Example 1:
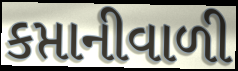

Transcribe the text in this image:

કપ્તાનીવાળી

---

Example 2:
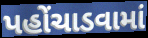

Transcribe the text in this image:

પહોંચાડવામાં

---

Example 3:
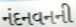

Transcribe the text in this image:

નંદનવનની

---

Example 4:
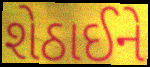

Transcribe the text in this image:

શેઠાઈને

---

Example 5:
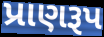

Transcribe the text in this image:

પ્રાણરૂપ